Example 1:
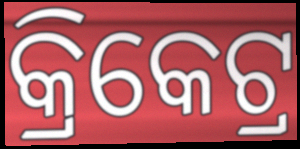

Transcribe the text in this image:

କ୍ରିକେଟ୍ର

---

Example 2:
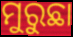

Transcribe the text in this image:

ମୁରୁଛା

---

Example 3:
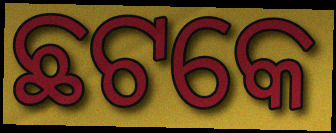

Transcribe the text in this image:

ଛଟକେ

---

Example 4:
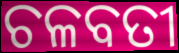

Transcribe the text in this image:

ଚଳବତୀ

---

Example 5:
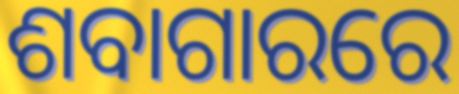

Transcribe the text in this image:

ଶବାଗାରରେ